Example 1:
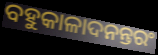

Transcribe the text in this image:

ବହୁକାଳାଦନନ୍ତରଂ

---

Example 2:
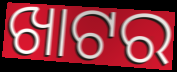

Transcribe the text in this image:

ଖାଟର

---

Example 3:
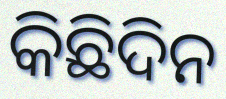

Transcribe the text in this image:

କିଛିଦିନ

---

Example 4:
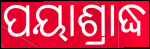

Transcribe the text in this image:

ପୟାଶ୍ରାଦ୍ଧ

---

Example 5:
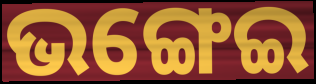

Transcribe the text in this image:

ଭଙ୍ଗେଇ